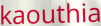
kaouthia